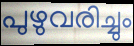
പുഴുവരിച്ചും